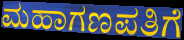
ಮಹಾಗಣಪತಿಗೆ